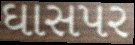
ઘાસપર